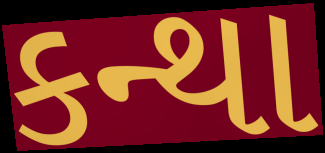
કન્થા